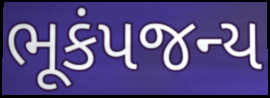
ભૂકંપજન્ય